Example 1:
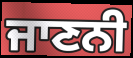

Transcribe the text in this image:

ਜਾਣਨੀ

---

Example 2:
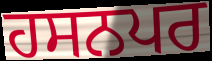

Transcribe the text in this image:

ਹਸਨਪਰ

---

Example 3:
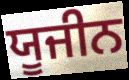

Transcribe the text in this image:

ਯੂਜੀਨ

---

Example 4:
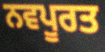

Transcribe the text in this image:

ਨਵਪੂਰਤ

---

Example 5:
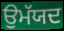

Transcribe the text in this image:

ਉਮੱਯਦ